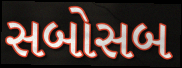
સબોસબ